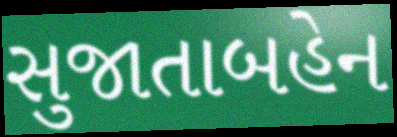
સુજાતાબહેન